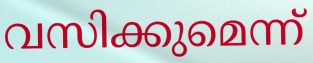
വസിക്കുമെന്ന്